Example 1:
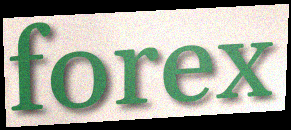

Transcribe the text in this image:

forex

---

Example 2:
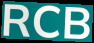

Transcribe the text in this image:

RCB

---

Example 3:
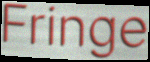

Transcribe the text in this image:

Fringe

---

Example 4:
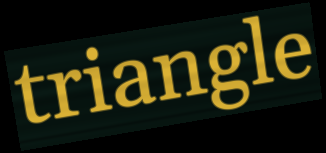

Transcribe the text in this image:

triangle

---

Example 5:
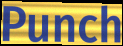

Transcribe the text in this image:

Punch